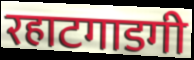
रहाटगाडगी